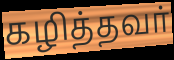
கழித்தவர்